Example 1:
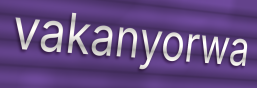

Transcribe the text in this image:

vakanyorwa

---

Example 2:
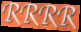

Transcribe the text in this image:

RRRR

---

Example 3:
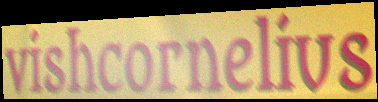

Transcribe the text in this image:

vishcornelius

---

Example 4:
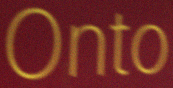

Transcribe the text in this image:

Onto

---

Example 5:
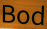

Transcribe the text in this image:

Bod